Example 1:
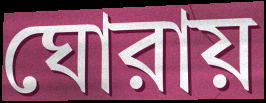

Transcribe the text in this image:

ঘোরায়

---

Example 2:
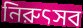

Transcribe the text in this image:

নিরুৎসব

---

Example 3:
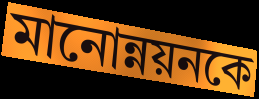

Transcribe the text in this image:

মানোন্নয়নকে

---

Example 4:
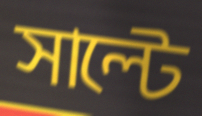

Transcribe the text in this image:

সাল্টে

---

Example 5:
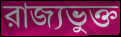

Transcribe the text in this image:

রাজ্যভুক্ত